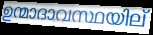
ഉന്മാദാവസ്ഥയില്